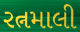
રત્નમાલી